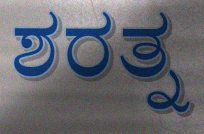
ಶರತ್ನ